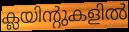
ക്ലയിന്റുകളിൽ